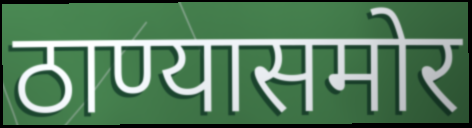
ठाण्यासमोर